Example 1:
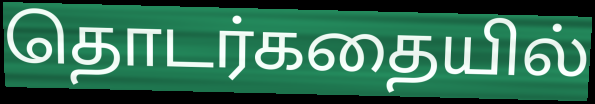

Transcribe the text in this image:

தொடர்கதையில்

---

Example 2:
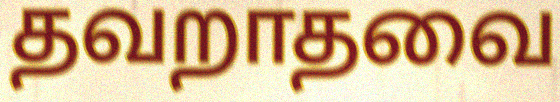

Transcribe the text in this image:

தவறாதவை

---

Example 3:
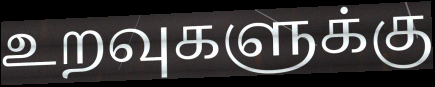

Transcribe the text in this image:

உறவுகளுக்கு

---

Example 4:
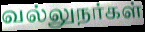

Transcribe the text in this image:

வல்லுநர்கள்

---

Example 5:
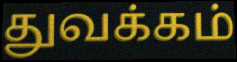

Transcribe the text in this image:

துவக்கம்